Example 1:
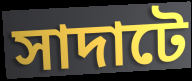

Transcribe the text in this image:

সাদাটে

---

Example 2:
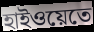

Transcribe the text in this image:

হাইওয়েতে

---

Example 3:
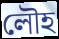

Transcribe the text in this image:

লৌহ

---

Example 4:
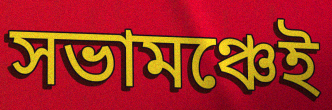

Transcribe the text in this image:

সভামঞ্চেই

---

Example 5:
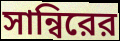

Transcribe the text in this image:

সান্বিরের